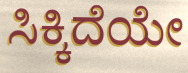
ಸಿಕ್ಕಿದೆಯೇ